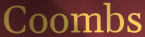
Coombs